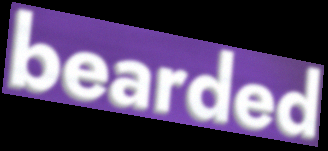
bearded